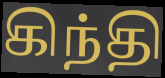
கிந்தி